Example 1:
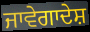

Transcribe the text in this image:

ਜਾਵੇਗਾਦੇਸ਼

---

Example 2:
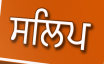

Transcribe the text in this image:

ਸਲਿਪ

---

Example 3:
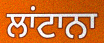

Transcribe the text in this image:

ਲਾਂਟਾਨਾ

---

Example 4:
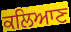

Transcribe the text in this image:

ਕਲਿਆਣ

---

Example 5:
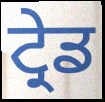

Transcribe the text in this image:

ਟ੍ਰੇਡ